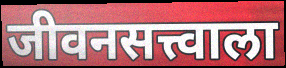
जीवनसत्त्वाला